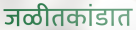
जळीतकांडात